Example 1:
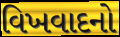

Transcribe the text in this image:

વિખવાદનો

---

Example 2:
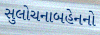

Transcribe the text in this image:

સુલોચનાબહેનનો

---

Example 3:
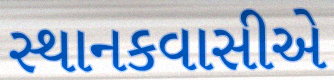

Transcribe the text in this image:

સ્થાનકવાસીએ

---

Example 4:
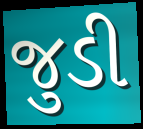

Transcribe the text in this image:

જુડી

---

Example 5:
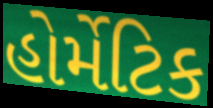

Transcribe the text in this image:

હોર્મેટિક